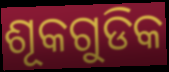
ଶୂକଗୁଡିକ